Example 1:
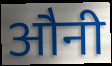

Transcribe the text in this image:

औनी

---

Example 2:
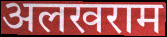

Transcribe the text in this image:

अलखराम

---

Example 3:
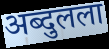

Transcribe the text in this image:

अब्दुलला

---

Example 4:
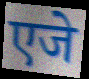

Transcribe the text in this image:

एजे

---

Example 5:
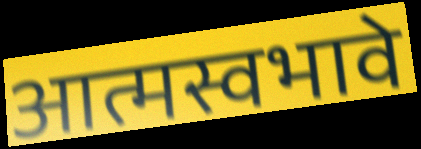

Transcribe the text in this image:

आत्मस्वभावे